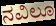
ನವಿಲೂ